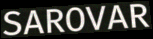
SAROVAR